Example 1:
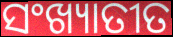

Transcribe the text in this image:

ସଂଖ୍ୟାତୀତ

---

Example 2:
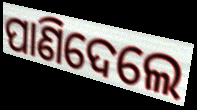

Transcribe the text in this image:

ପାଣିଦେଲେ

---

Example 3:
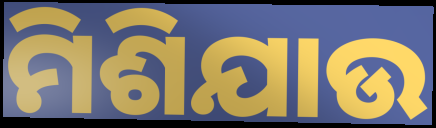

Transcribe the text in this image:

ମିଶିଯାଉ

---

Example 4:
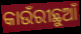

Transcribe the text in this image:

କାଉଁରୀଛୁଆଁ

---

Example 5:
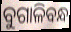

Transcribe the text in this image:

ବୁଗାଳିବନ୍ଧ